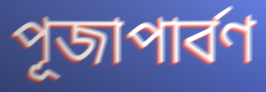
পূজাপার্বণ